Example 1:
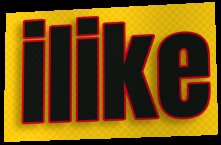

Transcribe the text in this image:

ilike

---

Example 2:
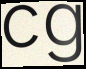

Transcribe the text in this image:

cg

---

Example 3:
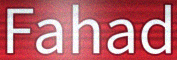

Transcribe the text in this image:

Fahad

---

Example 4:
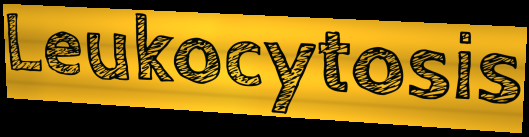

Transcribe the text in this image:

Leukocytosis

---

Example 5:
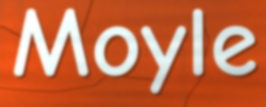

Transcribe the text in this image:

Moyle